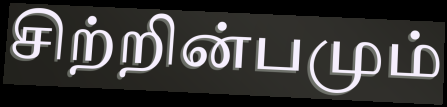
சிற்றின்பமும்